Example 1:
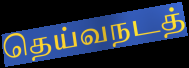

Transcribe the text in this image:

தெய்வநடத்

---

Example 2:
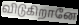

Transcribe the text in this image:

விடுகிறானே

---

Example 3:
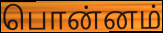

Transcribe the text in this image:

பொன்னம்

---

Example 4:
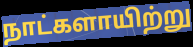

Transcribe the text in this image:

நாட்களாயிற்று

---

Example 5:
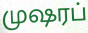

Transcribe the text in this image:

முஷரப்